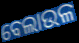
ବେଲାଉଳ